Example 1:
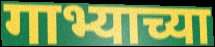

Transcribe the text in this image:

गाभ्याच्या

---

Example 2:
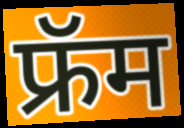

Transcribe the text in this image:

फ्रॅम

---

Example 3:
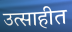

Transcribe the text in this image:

उत्साहीत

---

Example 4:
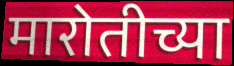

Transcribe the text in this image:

मारोतीच्या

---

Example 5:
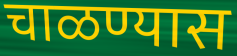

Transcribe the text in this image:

चाळण्यास